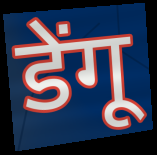
डेंगू